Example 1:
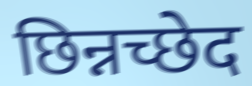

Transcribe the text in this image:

छिन्नच्छेद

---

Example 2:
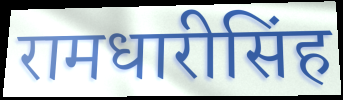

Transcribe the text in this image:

रामधारीसिंह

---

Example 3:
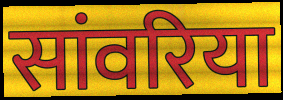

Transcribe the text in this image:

सांवरिया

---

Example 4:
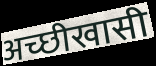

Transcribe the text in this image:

अच्छीखासी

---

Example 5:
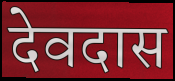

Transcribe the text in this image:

देवदास